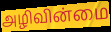
அழிவின்மை